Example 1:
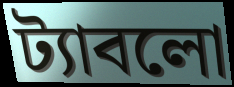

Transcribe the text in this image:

ট্যাবলো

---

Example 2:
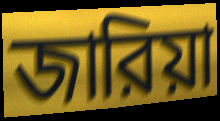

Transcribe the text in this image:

জারিয়া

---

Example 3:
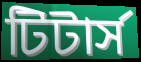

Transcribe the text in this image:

টিটার্স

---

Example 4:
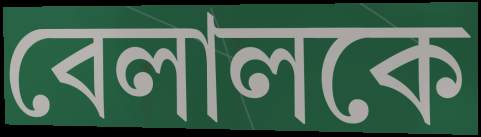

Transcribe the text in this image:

বেলালকে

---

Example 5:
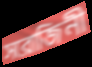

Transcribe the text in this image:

সরোজিনী